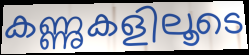
കണ്ണുകളിലൂടെ